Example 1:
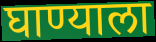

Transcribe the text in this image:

घाण्याला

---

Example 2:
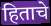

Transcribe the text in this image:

हिताचे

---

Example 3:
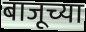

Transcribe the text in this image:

बाजूच्या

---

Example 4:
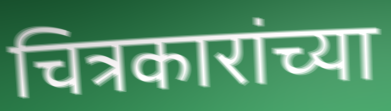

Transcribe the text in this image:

चित्रकारांच्या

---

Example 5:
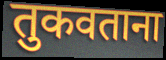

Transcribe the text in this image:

तुकवताना